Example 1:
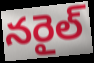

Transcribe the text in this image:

నరైల్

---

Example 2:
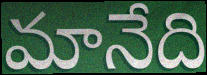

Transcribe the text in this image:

మానేది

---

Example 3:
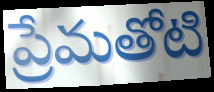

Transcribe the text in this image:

ప్రేమతోటి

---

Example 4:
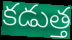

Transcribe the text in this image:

కడుత్త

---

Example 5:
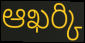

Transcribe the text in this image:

ఆఖర్కి